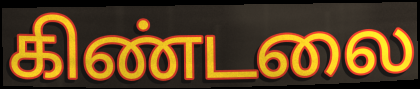
கிண்டலை